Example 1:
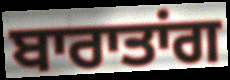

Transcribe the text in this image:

ਬਾਰਾਤਾਂਗ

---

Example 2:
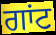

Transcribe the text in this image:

ਗਾਂਟ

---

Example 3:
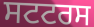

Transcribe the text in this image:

ਸਟਟਰਸ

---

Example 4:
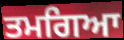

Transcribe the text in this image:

ਤਮਗਿਆ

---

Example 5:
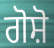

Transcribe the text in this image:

ਗੋਸ਼ੋ